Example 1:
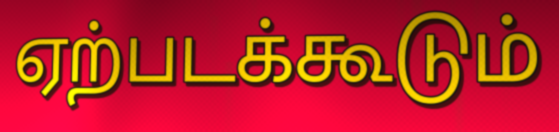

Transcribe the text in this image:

ஏற்படக்கூடும்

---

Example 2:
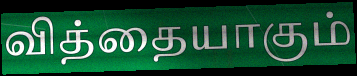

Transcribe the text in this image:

வித்தையாகும்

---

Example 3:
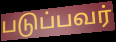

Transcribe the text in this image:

படுப்பவர்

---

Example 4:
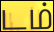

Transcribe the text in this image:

டம்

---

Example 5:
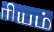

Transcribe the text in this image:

ரியம்